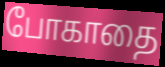
போகாதை